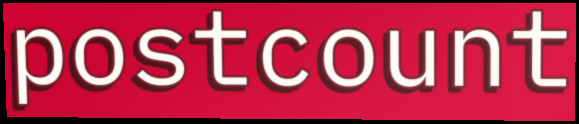
postcount